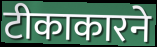
टीकाकारने